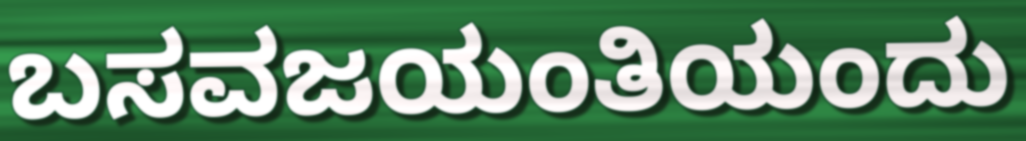
ಬಸವಜಯಂತಿಯಂದು